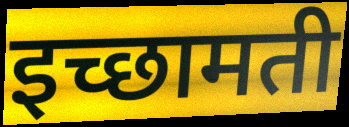
इच्छामती